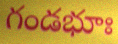
గండభూః